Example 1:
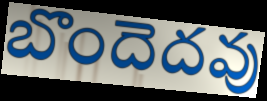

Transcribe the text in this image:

బొందెదవు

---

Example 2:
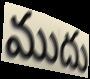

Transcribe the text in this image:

ముదు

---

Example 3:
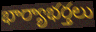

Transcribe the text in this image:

భార్యాభర్తలు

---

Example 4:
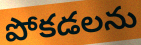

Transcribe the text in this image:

పోకడలను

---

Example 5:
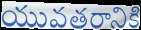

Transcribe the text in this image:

యువతరానికి